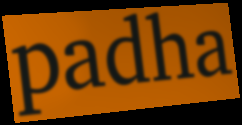
padha